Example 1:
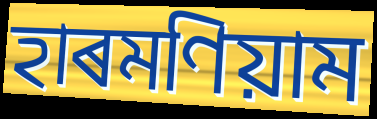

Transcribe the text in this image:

হাৰমণিয়াম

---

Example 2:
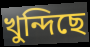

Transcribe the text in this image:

খুন্দিছে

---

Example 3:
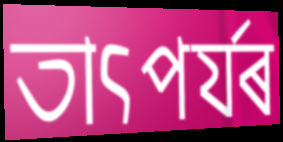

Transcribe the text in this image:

তাৎপৰ্যৰ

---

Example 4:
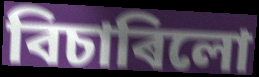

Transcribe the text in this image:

বিচাৰিলো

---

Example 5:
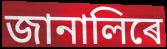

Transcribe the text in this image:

জানালিৰে